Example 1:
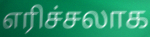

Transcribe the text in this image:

எரிச்சலாக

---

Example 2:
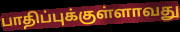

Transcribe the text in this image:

பாதிப்புக்குள்ளாவது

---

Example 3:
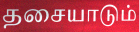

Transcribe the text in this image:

தசையாடும்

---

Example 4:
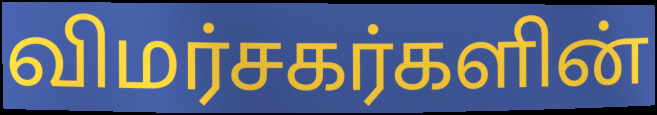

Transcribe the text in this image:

விமர்சகர்களின்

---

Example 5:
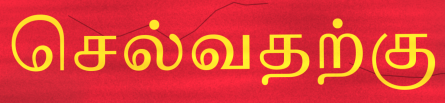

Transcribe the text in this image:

செல்வதற்கு